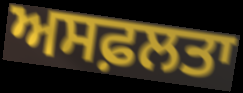
ਅਸਫ਼ਲਤਾ